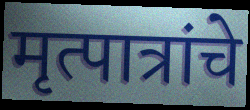
मृत्पात्रांचे